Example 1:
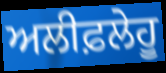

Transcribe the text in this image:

ਅਲੀਫ਼ਲੇਹੂ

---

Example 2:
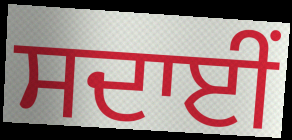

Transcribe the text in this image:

ਸਦਾਈਂ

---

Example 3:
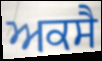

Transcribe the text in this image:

ਅਕਸੈ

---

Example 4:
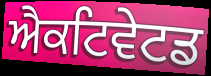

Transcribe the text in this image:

ਐਕਟਿਵੇਟਡ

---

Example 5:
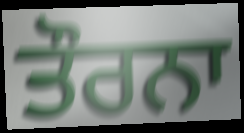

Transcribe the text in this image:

ਤੌਰਨਾ